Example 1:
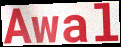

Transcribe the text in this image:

Awal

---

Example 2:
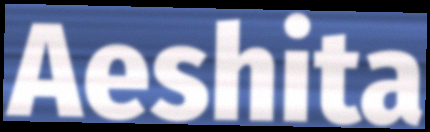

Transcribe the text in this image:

Aeshita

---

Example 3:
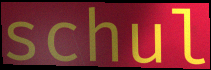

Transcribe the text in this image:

schul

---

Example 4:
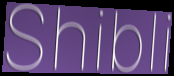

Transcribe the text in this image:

Shibli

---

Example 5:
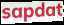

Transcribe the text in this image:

sapdat